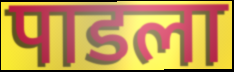
पाडला